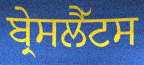
ਬ੍ਰੇਸਲੈੱਟਸ